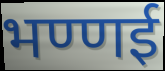
भण्णई